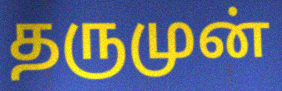
தருமுன்